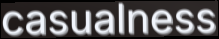
casualness